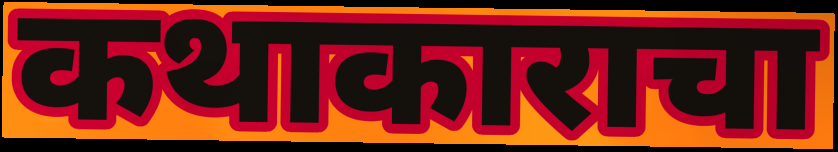
कथाकाराचा